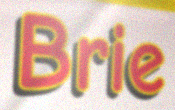
Brie